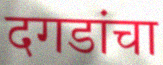
दगडांचा